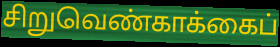
சிறுவெண்காக்கைப்